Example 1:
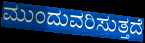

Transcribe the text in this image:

ಮುಂದುವರಿಸುತ್ತದೆ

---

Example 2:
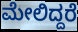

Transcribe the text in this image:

ಮೇಲಿದ್ದರೆ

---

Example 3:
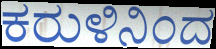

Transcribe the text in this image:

ಕರುಳಿನಿಂದ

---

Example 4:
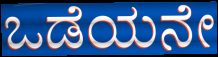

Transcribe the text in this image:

ಒಡೆಯನೇ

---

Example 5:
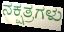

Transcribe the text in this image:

ನಕ್ಷತ್ರಗಳು